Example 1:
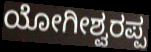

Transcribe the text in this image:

ಯೋಗೀಶ್ವರಪ್ಪ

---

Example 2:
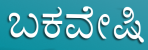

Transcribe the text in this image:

ಬಕವೇಷಿ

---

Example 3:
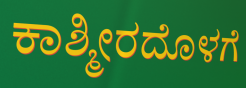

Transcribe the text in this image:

ಕಾಶ್ಮೀರದೊಳಗೆ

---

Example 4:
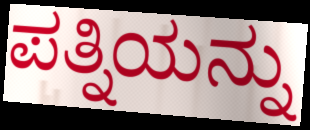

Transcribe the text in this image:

ಪತ್ನಿಯನ್ನು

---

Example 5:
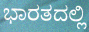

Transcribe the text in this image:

ಭಾರತದಲ್ಲಿ